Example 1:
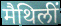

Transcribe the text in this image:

मैथिलीं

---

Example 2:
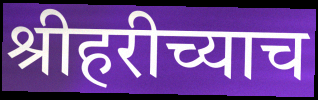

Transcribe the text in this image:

श्रीहरीच्याच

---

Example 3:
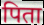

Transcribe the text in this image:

पिता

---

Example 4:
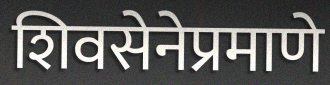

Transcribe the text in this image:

शिवसेनेप्रमाणे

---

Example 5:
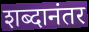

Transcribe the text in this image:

शब्दानंतर